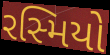
રસ્મિયો